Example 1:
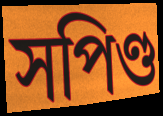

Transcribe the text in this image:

সপিণ্ড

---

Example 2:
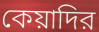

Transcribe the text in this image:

কেয়াদির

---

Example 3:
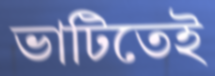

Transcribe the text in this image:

ভাটিতেই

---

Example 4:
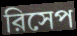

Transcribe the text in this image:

রিসেপ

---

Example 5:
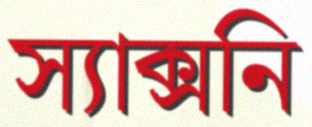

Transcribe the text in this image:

স্যাক্সনি